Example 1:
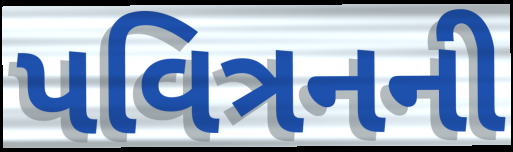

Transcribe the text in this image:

પવિત્રનની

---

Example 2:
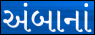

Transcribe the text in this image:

અંબાનાં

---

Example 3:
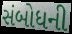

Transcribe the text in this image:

સંબોધની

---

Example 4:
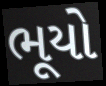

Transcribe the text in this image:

ભૂયો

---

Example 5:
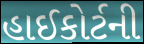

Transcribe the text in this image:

હાઈકોર્ટની